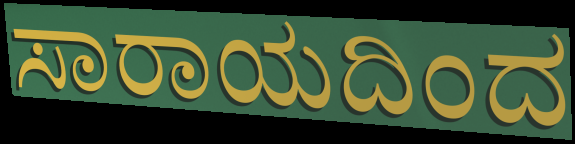
ಸಾರಾಯದಿಂದ